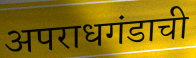
अपराधगंडाची